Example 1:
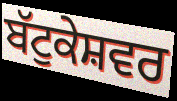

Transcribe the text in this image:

ਬੱਟੁਕੇਸ਼ਵਰ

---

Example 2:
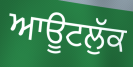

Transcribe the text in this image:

ਆਊਟਲੁੱਕ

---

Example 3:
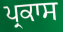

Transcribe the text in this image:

ਪ੍ਰਕਾਸ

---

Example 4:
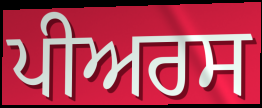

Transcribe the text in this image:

ਪੀਅਰਸ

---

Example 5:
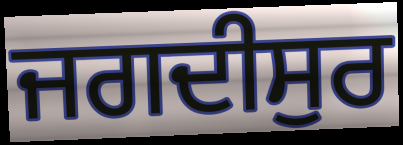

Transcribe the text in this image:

ਜਗਦੀਸੁਰ